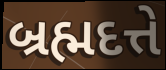
બ્રહ્મદત્તે